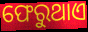
ଫେରୁଥାଏ